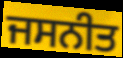
ਜਸਨੀਤ